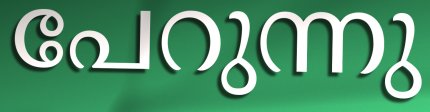
പേറുന്നു